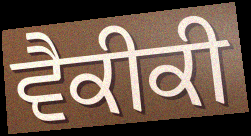
ਵੈਕੀਕੀ